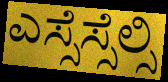
ಎಸ್ಸೆಸ್ಸೆಲ್ಸಿ